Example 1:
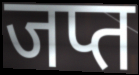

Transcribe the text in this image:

जप्त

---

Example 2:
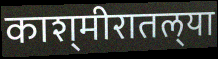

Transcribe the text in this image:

काश्मीरातल्या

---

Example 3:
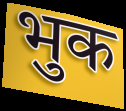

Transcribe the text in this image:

भुक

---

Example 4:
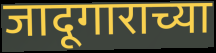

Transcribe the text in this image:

जादूगाराच्या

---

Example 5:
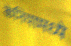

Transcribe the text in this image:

केनियामध्ये